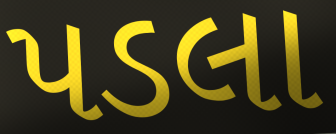
પડલા